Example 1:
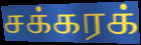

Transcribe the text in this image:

சக்கரக்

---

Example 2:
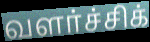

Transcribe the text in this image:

வளர்ச்சிக்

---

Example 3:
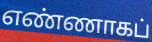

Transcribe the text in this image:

எண்ணாகப்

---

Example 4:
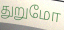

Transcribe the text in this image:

துறுமோ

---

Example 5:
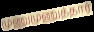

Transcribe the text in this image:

முணுமுணுத்தார்